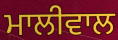
ਮਾਲੀਵਾਲ